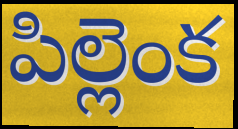
పిల్లెంక